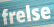
frelse